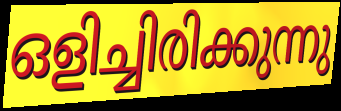
ഒളിച്ചിരിക്കുന്നു